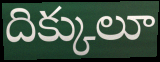
దిక్కులూ